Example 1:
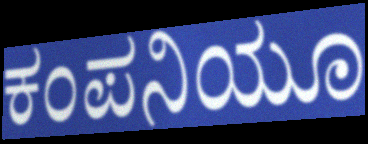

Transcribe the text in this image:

ಕಂಪನಿಯೂ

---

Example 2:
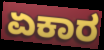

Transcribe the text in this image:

ಏಕಾರ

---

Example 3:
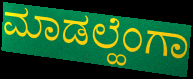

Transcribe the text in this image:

ಮಾಡಲ್ಹೆಂಗಾ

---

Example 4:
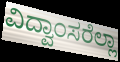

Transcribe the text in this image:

ವಿದ್ವಾಂಸರೆಲ್ಲಾ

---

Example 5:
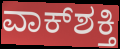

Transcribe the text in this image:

ವಾಕ್‌ಶಕ್ತಿ